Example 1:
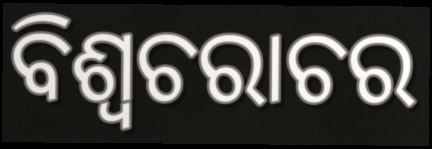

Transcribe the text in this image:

ବିଶ୍ଵଚରାଚର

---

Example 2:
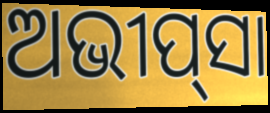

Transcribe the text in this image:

ଅଭୀପ୍‌ସା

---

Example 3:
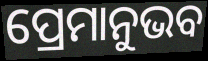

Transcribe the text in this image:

ପ୍ରେମାନୁଭବ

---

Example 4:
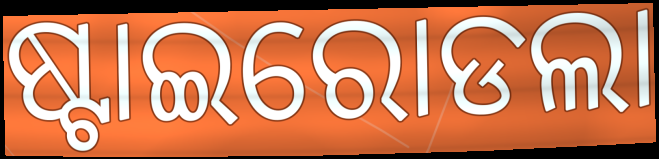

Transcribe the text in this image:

ଷ୍ଟାଇରୋଡଲା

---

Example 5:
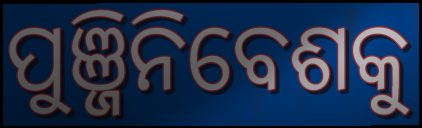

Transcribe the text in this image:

ପୁଞ୍ଜିନିବେଶକୁ